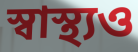
স্বাস্থ্যও